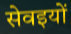
सेवइयों